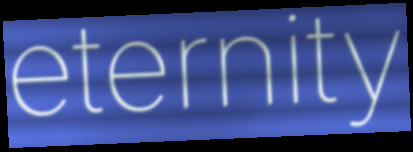
eternity